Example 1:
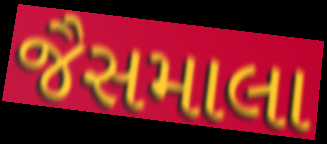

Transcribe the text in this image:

જૈસમાલા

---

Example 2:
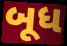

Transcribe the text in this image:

બૂધ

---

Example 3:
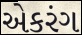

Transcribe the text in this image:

એકરંગ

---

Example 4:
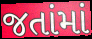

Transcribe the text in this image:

જતાંમાં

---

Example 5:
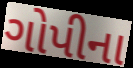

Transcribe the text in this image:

ગોપીના